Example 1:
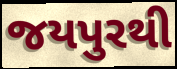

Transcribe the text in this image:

જયપુરથી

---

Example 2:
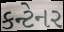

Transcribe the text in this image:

કન્ટેનર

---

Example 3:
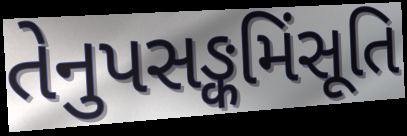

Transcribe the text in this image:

તેનુપસઙ્કમિંસૂતિ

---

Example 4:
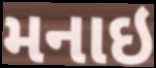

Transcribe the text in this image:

મનાઇ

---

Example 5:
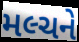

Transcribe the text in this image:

મલ્ચને